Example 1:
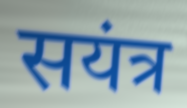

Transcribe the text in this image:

सयंत्र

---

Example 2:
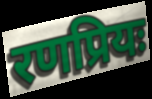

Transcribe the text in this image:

रणप्रियः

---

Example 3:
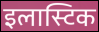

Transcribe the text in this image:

इलास्टिक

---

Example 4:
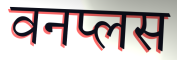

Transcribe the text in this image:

वनप्लस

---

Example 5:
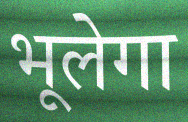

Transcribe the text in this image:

भूलेगा